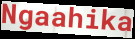
Ngaahika